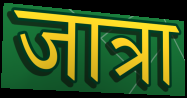
जात्रा